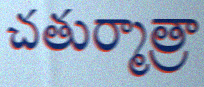
చతుర్మాత్రా